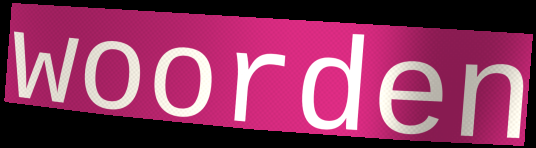
woorden